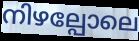
നിഴല്പോലെ